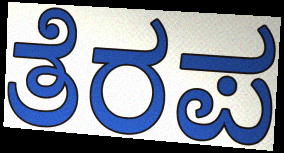
ತೆರಪ